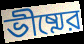
ভীষ্মের